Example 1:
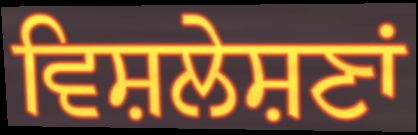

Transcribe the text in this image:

ਵਿਸ਼ਲੇਸ਼ਣਾਂ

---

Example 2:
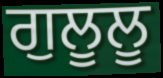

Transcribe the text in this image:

ਗੁਲੂਲੂ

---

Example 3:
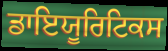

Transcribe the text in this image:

ਡਾਇਯੂਰਿਟਿਕਸ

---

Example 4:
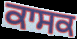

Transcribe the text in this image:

ਕਾਸਕ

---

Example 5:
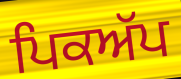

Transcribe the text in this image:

ਪਿਕਅੱਪ